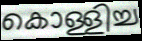
കൊള്ളിച്ച